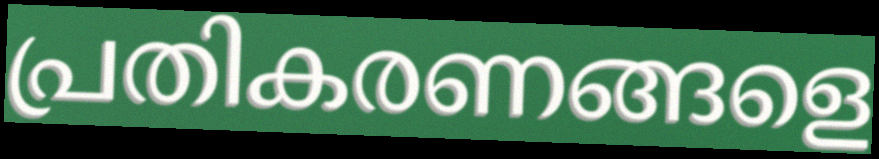
പ്രതികരണങ്ങളെ